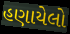
હણાયેલો